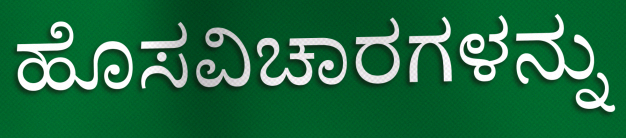
ಹೊಸವಿಚಾರಗಳನ್ನು